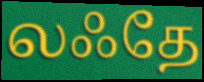
லஃதே